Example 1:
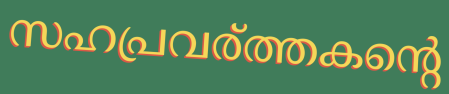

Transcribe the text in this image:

സഹപ്രവര്ത്തകന്റെ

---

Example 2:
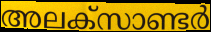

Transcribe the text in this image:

അലക്സാണ്ടർ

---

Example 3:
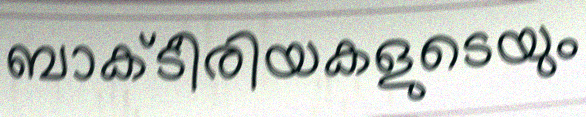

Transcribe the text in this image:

ബാക്ടീരിയകളുടെയും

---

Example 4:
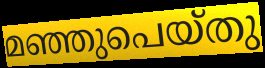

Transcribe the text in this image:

മഞ്ഞുപെയ്തു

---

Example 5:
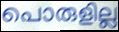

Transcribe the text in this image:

പൊരുളില്ല